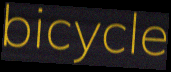
bicycle